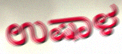
ಉಷಾಳ